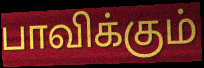
பாவிக்கும்